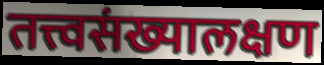
तत्त्वसंख्यालक्षण